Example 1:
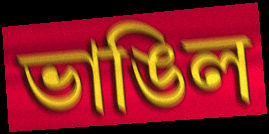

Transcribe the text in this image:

ভাঙিল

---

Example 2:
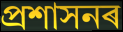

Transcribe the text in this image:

প্ৰশাসনৰ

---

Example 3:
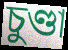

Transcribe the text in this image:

চুণ্ডা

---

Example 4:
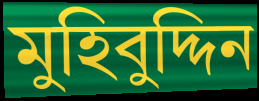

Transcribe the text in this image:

মুহিবুদ্দিন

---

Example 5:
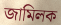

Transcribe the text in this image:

জামিলক